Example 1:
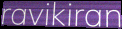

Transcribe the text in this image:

ravikiran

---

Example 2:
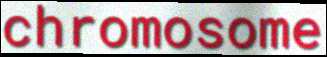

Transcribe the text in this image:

chromosome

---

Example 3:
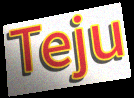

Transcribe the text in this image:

Teju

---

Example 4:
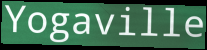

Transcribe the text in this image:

Yogaville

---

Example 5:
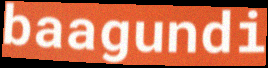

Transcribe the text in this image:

baagundi